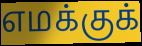
எமக்குக்